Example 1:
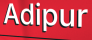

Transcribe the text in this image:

Adipur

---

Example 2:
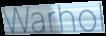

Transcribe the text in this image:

Warhol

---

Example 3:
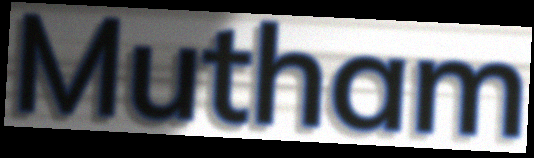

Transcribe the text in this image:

Mutham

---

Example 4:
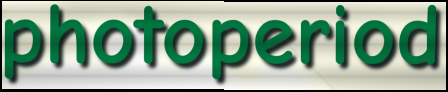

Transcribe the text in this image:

photoperiod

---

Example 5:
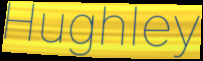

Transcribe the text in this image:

Hughley